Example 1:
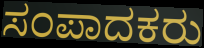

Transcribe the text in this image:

ಸಂಪಾದಕರು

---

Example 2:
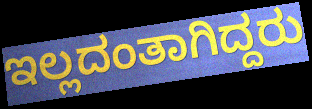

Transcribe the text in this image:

ಇಲ್ಲದಂತಾಗಿದ್ದರು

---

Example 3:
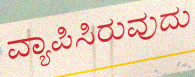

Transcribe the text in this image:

ವ್ಯಾಪಿಸಿರುವುದು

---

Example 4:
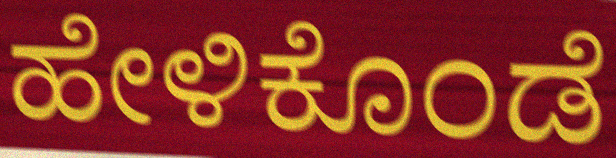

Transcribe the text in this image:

ಹೇಳಿಕೊಂಡೆ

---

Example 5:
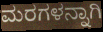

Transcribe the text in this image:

ಮರಗಳನ್ನಾಗಿ